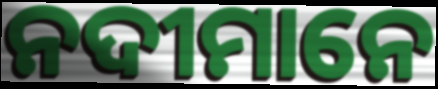
ନଦୀମାନେ